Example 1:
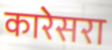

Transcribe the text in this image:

कारेसरा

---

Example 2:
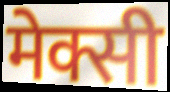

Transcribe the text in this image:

मेक्सी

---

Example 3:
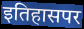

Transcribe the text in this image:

इतिहासपर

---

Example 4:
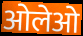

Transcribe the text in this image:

ओलेओ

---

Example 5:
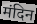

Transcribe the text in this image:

मंदिन